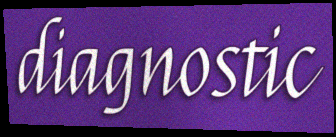
diagnostic